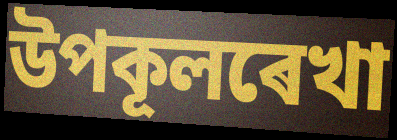
উপকূলৰেখা